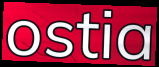
ostia